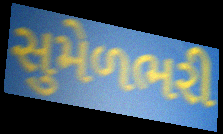
સુમેળભરી